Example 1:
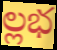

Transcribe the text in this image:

ల్లభ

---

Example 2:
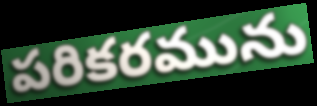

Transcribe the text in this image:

పరికరమును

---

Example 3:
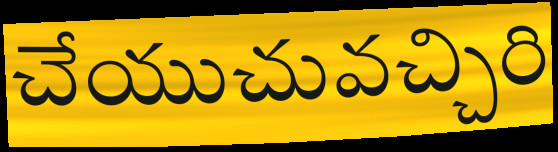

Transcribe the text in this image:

చేయుచువచ్చిరి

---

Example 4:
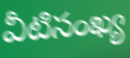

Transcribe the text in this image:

వీటిసంఖ్య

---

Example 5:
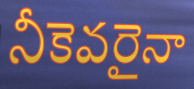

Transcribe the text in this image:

నీకెవరైనా